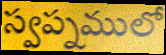
స్వప్నములో